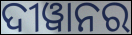
ଦୀୱାନର